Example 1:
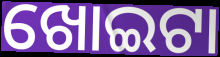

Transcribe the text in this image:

ଖୋଇଟା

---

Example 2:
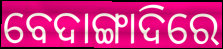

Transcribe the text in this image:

ବେଦାଙ୍ଗାଦିରେ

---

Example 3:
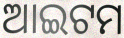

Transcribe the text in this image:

ଆଇଟମ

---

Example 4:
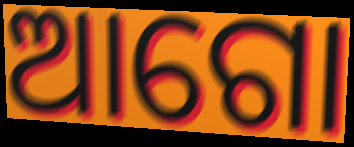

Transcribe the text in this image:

ଆଗୋ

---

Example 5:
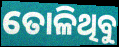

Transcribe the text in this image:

ତୋଳିଥିବୁ